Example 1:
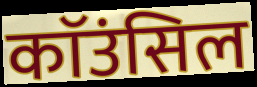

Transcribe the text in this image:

कॉउंसिल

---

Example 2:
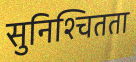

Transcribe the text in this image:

सुनिश्चितता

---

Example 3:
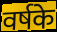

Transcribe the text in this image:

वर्षके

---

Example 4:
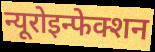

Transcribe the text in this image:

न्यूरोइन्फेक्शन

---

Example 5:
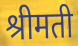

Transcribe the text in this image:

श्रीमती